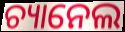
ଚ୍ୟାନେଲ